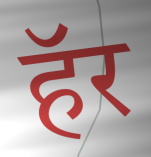
हॅर